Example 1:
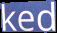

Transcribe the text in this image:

ked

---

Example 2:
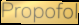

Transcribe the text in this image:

Propofol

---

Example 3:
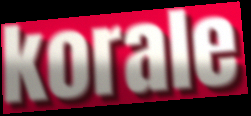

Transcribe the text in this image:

korale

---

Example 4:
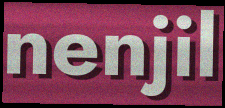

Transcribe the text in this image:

nenjil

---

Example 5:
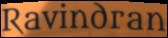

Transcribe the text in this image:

Ravindran